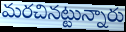
మరచినట్టున్నారు